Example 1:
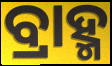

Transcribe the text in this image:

ବ୍ରାହ୍ମ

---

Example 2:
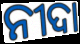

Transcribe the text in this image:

ନୀଦା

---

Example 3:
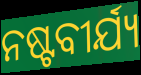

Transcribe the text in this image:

ନଷ୍ଟବୀର୍ଯ୍ୟ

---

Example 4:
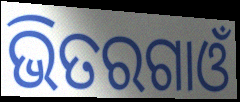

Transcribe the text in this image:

ଭିତରଗାଓଁ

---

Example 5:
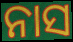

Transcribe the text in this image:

ନାସ